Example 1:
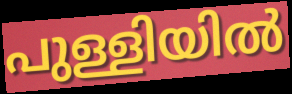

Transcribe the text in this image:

പുള്ളിയിൽ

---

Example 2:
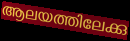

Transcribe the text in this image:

ആലയത്തിലേക്കു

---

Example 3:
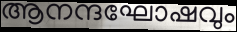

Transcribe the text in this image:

ആനന്ദഘോഷവും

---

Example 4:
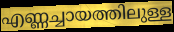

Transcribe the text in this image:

എണ്ണച്ചായത്തിലുള്ള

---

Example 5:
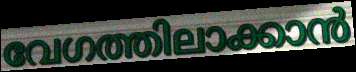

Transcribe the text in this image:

വേഗത്തിലാക്കാൻ